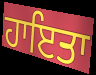
ਹਾਇਤਾ